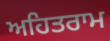
ਅਹਿਤਰਾਮ